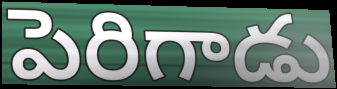
పెరిగాడు